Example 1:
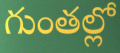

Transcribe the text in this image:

గుంతల్లో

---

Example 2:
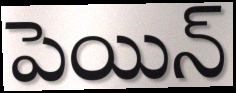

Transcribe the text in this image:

పెయిన్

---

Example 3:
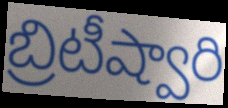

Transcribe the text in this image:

బ్రిటీష్వారి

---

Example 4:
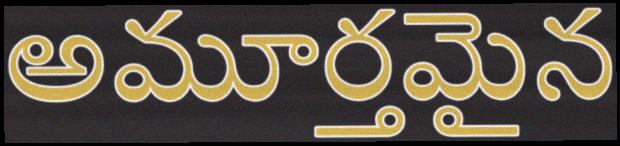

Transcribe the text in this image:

అమూర్తమైన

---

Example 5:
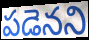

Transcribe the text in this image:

పడెనని